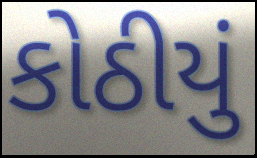
કોઠીયું